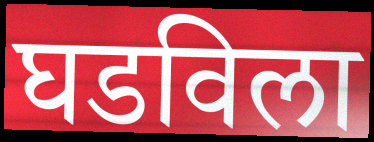
घडविला